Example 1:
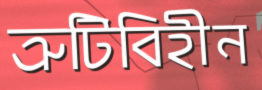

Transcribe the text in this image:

ত্রুটিবিহীন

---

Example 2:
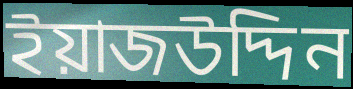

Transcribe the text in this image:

ইয়াজউদ্দিন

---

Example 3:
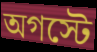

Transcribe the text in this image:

অগস্টে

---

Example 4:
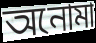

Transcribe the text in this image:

অনোমা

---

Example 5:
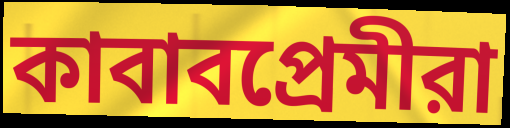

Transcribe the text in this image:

কাবাবপ্রেমীরা